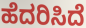
ಹೆದರಿಸಿದೆ